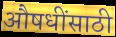
औषधींसाठी